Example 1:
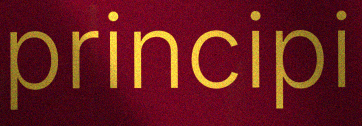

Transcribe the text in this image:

principi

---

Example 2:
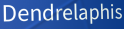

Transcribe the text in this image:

Dendrelaphis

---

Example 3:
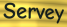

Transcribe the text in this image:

Servey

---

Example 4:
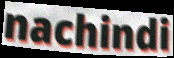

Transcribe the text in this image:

nachindi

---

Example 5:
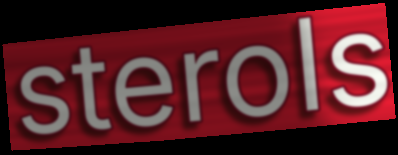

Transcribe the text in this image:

sterols